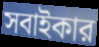
সবাইকার